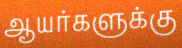
ஆயர்களுக்கு